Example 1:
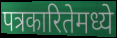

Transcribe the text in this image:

पत्रकारितेमध्ये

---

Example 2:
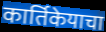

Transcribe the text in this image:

कार्तिकेयाचा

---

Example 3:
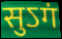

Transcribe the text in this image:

सुऽगं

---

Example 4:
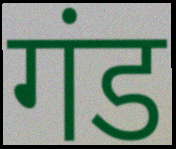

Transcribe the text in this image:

गंड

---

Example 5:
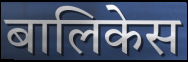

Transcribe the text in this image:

बालिकेस